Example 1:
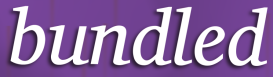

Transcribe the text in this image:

bundled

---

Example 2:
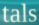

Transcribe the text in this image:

tals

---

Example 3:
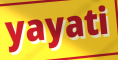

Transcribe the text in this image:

yayati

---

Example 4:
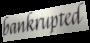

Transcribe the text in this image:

bankrupted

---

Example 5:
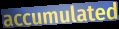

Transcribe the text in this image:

accumulated